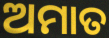
ଅମାତ